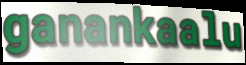
ganankaalu